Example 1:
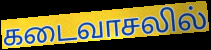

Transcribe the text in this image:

கடைவாசலில்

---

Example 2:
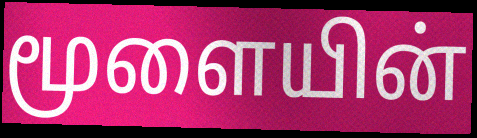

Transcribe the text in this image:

மூளையின்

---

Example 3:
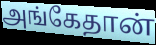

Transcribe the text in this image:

அங்கேதான்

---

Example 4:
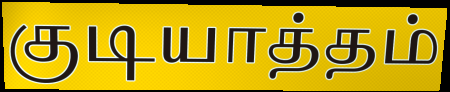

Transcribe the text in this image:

குடியாத்தம்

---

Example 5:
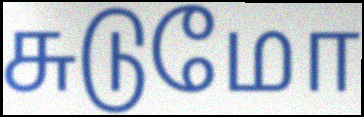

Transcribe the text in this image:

சுடுமோ